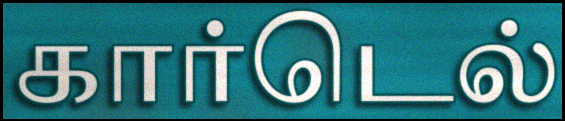
கார்டெல்